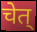
चेत्